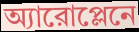
অ্যারোপ্লেনে